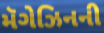
મૅગેઝિનની